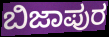
ಬಿಜಾಪುರ